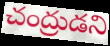
చంద్రుడని